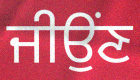
ਜੀਉਂਣ